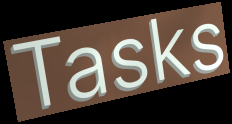
Tasks